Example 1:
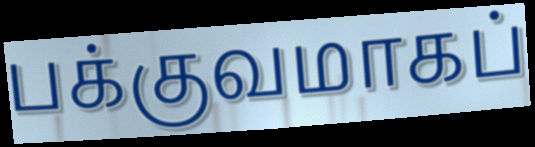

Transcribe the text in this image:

பக்குவமாகப்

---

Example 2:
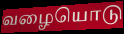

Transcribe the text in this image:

வழையொடு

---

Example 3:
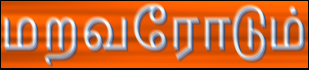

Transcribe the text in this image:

மறவரோடும்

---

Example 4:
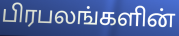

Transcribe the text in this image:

பிரபலங்களின்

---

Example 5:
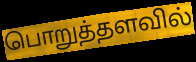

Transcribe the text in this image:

பொறுத்தளவில்